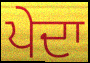
ਪੇਦਾ